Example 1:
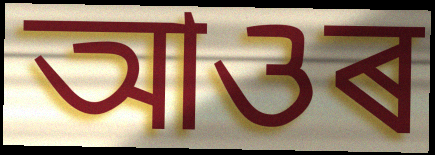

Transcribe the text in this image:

আওৰ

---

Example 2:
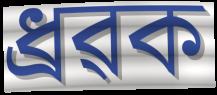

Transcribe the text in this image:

ধ্ৰৱক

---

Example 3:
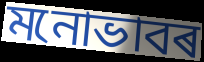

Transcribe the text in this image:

মনোভাবৰ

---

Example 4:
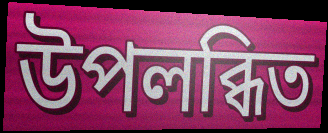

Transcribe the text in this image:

উপলব্ধিত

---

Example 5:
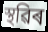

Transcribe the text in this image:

স্থৱিৰ